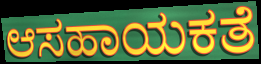
ಆಸಹಾಯಕತೆ